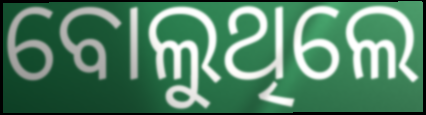
ବୋଲୁଥିଲେ